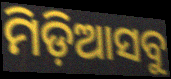
ମିଡ଼ିଆସବୁ